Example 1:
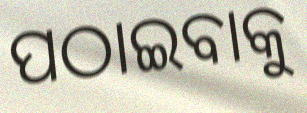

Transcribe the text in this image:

ପଠାଇବାକୁ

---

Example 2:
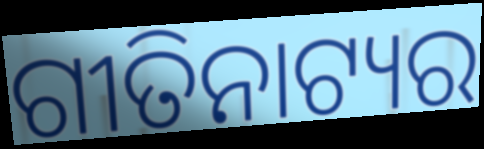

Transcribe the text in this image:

ଗୀତିନାଟ୍ୟର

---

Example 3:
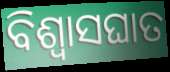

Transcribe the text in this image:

ବିଶ୍ବାସଘାତ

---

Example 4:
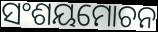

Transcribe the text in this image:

ସଂଶୟମୋଚନ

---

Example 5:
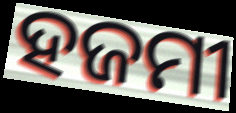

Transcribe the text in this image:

ହଜମୀ